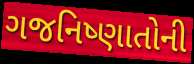
ગજનિષ્ણાતોની